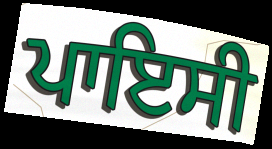
ਪਾਇਸੀ